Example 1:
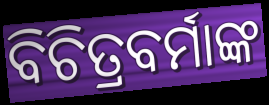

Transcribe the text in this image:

ବିଚିତ୍ରବର୍ମାଙ୍କ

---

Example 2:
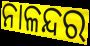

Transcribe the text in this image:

ନାଳନ୍ଦର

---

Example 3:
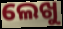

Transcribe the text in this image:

ଲେଖୁ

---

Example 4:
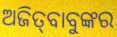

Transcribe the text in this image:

ଅଜିତ୍‍ବାବୁଙ୍କର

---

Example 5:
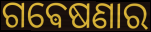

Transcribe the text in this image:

ଗଵେଷଣାର